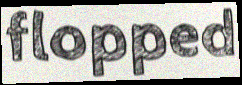
flopped